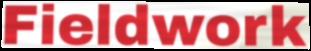
Fieldwork